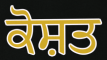
ਕੋਸ਼ਤ